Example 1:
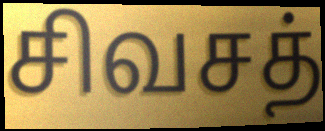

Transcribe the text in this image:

சிவசத்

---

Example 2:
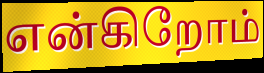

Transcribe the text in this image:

என்கிறோம்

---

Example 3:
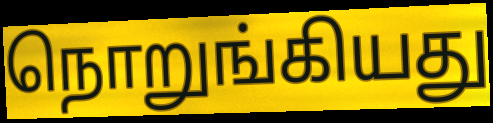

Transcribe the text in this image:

நொறுங்கியது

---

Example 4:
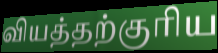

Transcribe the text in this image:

வியத்தற்குரிய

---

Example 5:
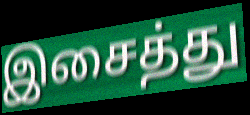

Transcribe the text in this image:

இசைத்து